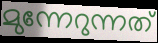
മുന്നേറുന്നത്